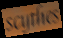
scythes